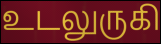
உடலுருகி